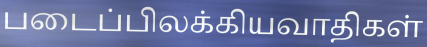
படைப்பிலக்கியவாதிகள்